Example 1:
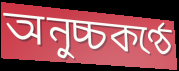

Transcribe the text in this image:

অনুচ্চকণ্ঠে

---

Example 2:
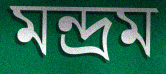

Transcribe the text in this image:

মন্দ্রম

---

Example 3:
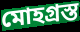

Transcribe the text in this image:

মোহগ্রস্ত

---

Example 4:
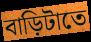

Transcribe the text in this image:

বাড়িটাতে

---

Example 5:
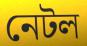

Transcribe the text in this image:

নেটল